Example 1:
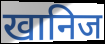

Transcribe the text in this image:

खानिज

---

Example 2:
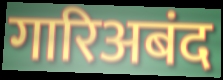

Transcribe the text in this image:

गारिअबंद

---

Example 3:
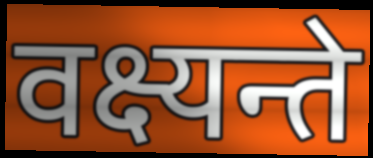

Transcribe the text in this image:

वक्ष्यन्ते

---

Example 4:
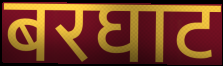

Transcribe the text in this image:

बरघाट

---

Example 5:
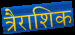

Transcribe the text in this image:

त्रैराशिक